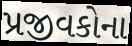
પ્રજીવકોના